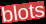
blots